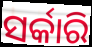
ସର୍କାରି